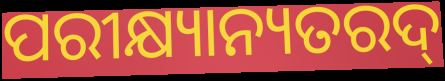
ପରୀକ୍ଷ୍ୟାନ୍ୟତରଦ୍